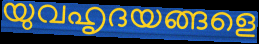
യുവഹൃദയങ്ങളെ